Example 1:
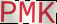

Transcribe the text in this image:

PMK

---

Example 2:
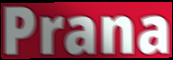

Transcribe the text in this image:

Prana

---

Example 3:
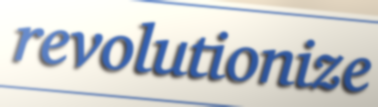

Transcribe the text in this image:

revolutionize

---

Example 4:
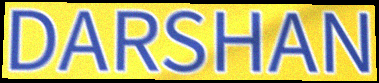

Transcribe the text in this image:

DARSHAN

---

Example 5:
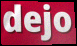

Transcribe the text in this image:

dejo